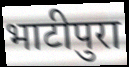
भाटीपुरा